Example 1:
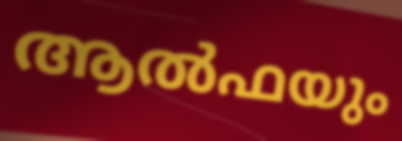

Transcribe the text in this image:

ആൽഫയും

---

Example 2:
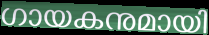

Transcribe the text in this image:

ഗായകനുമായി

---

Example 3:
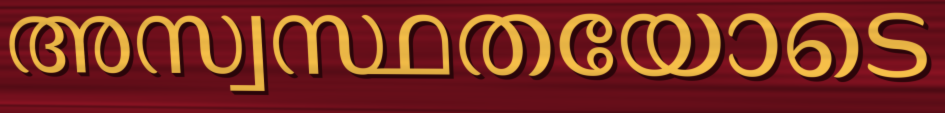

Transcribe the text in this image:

അസ്വസ്ഥതയോടെ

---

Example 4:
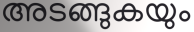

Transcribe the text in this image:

അടങ്ങുകയും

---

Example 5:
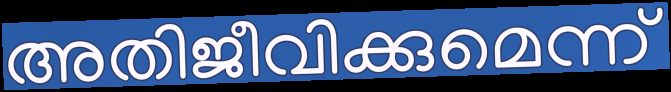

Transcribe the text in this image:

അതിജീവിക്കുമെന്ന്